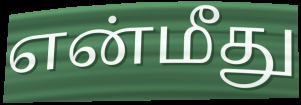
என்மீது